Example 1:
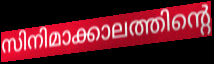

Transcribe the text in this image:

സിനിമാക്കാലത്തിന്റെ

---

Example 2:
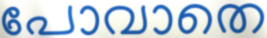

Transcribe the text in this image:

പോവാതെ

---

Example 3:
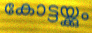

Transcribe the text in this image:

കോട്ടയ്ക്കും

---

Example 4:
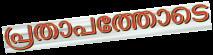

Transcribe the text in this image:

പ്രതാപത്തോടെ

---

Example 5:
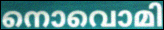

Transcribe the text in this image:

നൊവൊമി